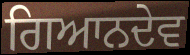
ਗਿਆਨਦੇਵ